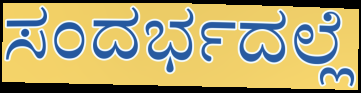
ಸಂದರ್ಭದಲ್ಲೆ